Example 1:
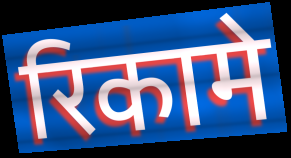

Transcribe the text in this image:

रिकामे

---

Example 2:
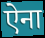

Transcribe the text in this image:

ऐना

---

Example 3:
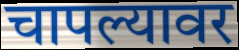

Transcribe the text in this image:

चापल्यावर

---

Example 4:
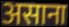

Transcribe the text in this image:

असाना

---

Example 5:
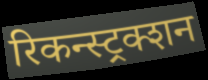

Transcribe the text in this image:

रिकन्स्ट्रक्शन